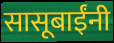
सासूबाईंनी